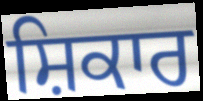
ਸ਼ਿਕਾਰ